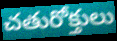
చతురోక్తులు